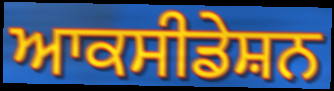
ਆਕਸੀਡੇਸ਼ਨ